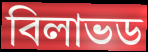
বিলাভড